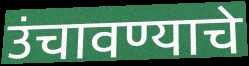
उंचावण्याचे